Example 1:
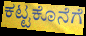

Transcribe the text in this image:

ಕಟ್ಟಕೊನೆಗೆ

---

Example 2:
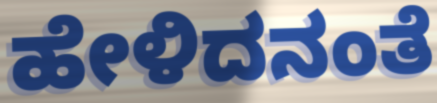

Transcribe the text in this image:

ಹೇಳಿದನಂತೆ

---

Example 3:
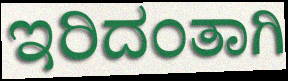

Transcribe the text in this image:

ಇರಿದಂತಾಗಿ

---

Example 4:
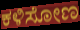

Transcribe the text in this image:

ಕಳಿಸೋಣ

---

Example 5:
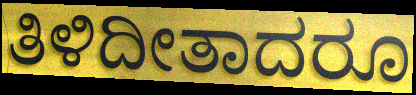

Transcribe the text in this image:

ತಿಳಿದೀತಾದರೂ